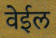
वेईल